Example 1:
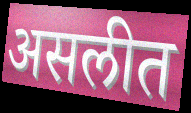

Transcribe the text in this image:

असलीत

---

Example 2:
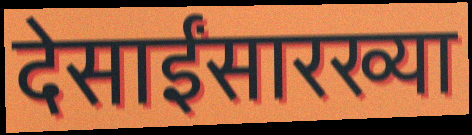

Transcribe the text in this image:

देसाईंसारख्या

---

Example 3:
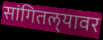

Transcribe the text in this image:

सांगितल्यावर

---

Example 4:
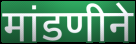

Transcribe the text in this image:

मांडणीने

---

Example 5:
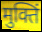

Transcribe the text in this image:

मुक्तिं